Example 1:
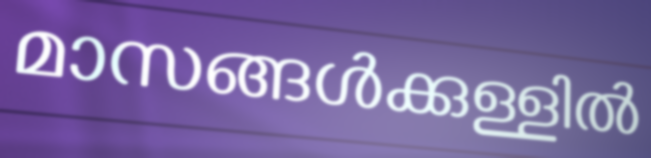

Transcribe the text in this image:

മാസങ്ങൾക്കുള്ളിൽ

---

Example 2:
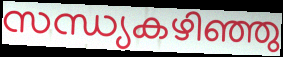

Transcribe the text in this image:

സന്ധ്യകഴിഞ്ഞു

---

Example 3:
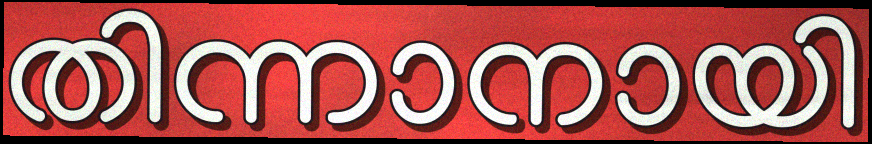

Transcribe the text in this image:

തിന്നാനായി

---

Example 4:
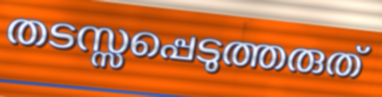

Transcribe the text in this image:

തടസ്സപ്പെടുത്തരുത്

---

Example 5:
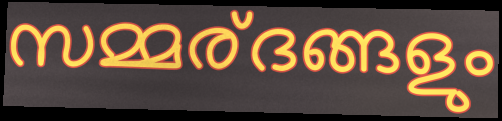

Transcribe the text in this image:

സമ്മര്ദങ്ങളും